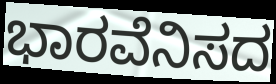
ಭಾರವೆನಿಸದ